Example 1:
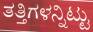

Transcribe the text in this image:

ತತ್ತಿಗಳನ್ನಿಟ್ಟು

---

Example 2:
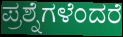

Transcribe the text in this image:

ಪ್ರಶ್ನೆಗಳೆಂದರೆ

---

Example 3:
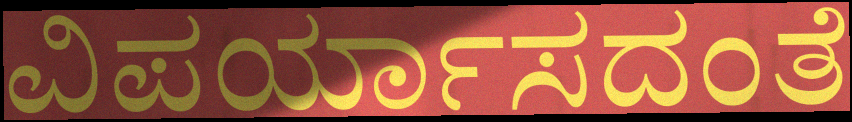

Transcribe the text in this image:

ವಿಪರ್ಯಾಸದಂತೆ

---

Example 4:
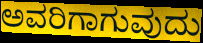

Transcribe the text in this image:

ಅವರಿಗಾಗುವುದು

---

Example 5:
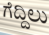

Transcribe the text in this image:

ಗೆದ್ದಿಲು